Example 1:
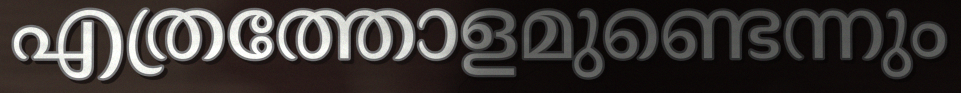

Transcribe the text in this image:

എത്രത്തോളമുണ്ടെന്നും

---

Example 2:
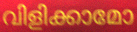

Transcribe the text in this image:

വിളിക്കാമോ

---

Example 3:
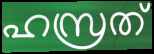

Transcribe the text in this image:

ഹസ്രത്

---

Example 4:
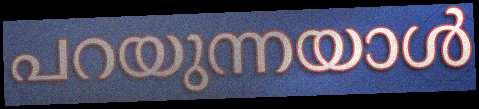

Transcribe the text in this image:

പറയുന്നയാൾ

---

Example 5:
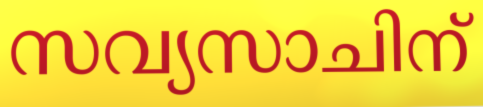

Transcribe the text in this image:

സവ്യസാചിന്